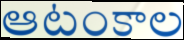
ఆటంకాల